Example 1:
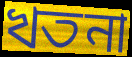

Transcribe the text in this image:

খতনা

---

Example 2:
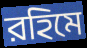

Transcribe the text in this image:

রহিমে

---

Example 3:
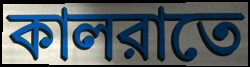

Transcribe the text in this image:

কালরাতে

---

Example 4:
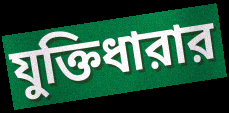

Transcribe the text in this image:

যুক্তিধারার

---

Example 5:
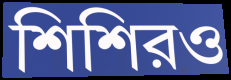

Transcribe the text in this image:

শিশিরও